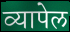
व्यापेल